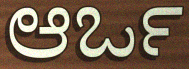
ಆರ್ಒ